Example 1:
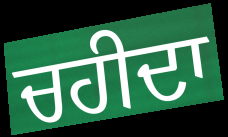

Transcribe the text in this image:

ਚਹੀਦਾ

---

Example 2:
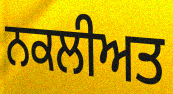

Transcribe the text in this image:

ਨਕਲੀਅਤ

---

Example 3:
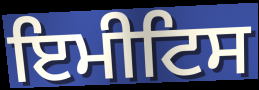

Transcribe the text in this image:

ਇਮੀਟਿਸ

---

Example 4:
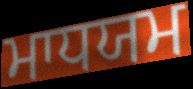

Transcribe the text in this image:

ਮਾਧਯਮ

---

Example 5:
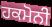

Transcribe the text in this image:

ਹਕਮੋਨੀ